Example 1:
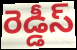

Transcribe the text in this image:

రెడ్డీస్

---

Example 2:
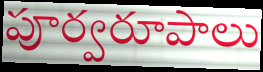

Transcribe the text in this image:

పూర్వరూపాలు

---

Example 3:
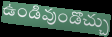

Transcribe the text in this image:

ఉండివుండొచ్చు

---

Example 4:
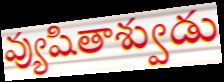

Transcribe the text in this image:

వ్యుషితాశ్వుడు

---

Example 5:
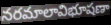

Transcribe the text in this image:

నరమాలావిభూషణా